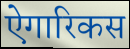
ऐगारिकस